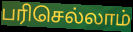
பரிசெல்லாம்